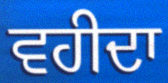
ਵਹੀਦਾ